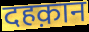
दहक़ान